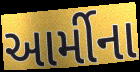
આર્મીના